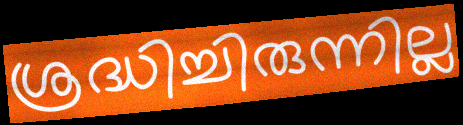
ശ്രദ്ധിച്ചിരുന്നില്ല